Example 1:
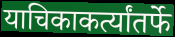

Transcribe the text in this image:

याचिकाकर्त्यांतर्फे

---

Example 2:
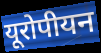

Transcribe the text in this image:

यूरोपीयन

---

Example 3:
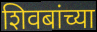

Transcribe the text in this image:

शिवबांच्या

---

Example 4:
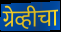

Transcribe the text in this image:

ग्रेव्हीचा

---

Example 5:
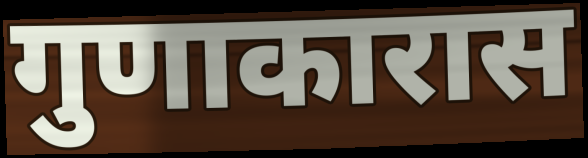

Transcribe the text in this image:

गुणाकारास